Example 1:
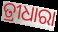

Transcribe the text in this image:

ତ୍ରୀଧାରା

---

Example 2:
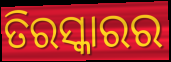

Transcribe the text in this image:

ତିରସ୍କାରର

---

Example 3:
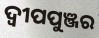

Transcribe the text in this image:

ଦ୍ଵୀପପୁଞ୍ଜର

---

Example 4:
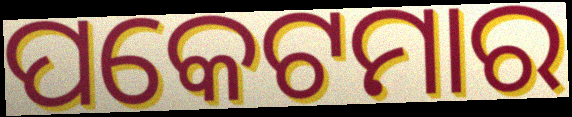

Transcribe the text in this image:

ପକେଟମାର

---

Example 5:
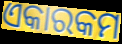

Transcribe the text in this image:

ଏକାରକମ